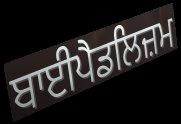
ਬਾਈਪੈਡਲਿਜ਼ਮ